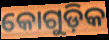
କୋଗୁଡ଼ିକ